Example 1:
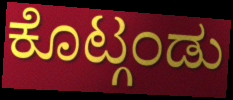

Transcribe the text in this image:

ಕೊಟ್ಗಂಡು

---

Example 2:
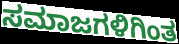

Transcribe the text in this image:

ಸಮಾಜಗಳಿಗಿಂತ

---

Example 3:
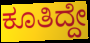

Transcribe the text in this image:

ಕೂತಿದ್ದೇ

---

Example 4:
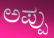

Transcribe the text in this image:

ಅಪ್ಪು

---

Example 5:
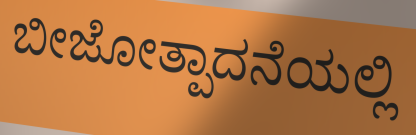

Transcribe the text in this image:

ಬೀಜೋತ್ಪಾದನೆಯಲ್ಲಿ